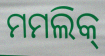
ମମଲିକ୍